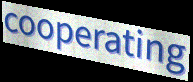
cooperating